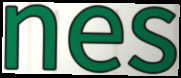
nes